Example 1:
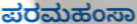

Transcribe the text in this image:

ಪರಮಹಂಸಾ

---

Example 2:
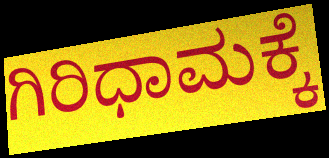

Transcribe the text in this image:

ಗಿರಿಧಾಮಕ್ಕೆ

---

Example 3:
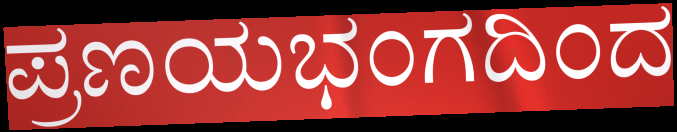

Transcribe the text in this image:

ಪ್ರಣಯಭಂಗದಿಂದ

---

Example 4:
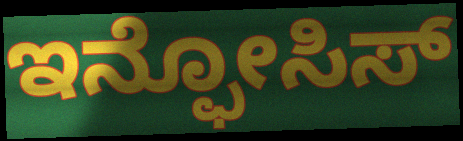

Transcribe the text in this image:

ಇನ್ಫೋಸಿಸ್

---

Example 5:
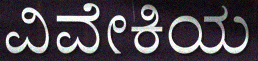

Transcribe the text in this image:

ವಿವೇಕಿಯ